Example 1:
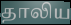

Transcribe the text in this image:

தாலிய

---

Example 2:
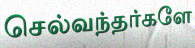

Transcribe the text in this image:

செல்வந்தர்களே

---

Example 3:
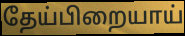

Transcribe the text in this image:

தேய்பிறையாய்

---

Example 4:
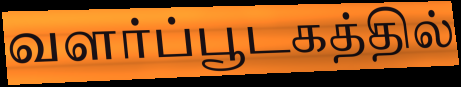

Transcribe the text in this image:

வளர்ப்பூடகத்தில்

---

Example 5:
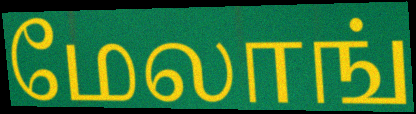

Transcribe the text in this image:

மேலாங்